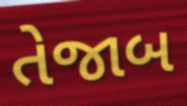
તેજાબ